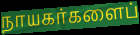
நாயகர்களைப்